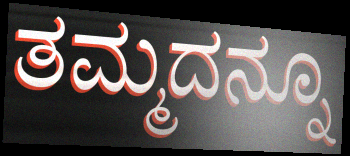
ತಮ್ಮದನ್ನೂ